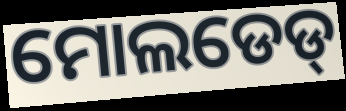
ମୋଲଡେଡ୍